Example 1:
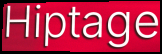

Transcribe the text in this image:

Hiptage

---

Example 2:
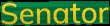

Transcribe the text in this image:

Senator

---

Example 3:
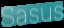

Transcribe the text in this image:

Sasus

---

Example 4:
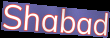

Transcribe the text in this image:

Shabad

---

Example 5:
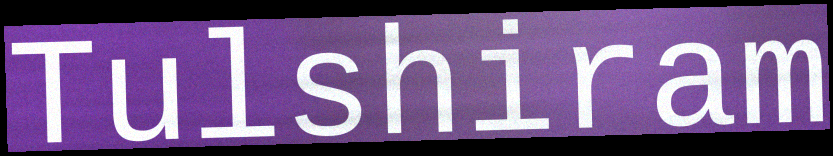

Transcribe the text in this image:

Tulshiram